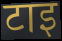
टाइ